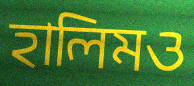
হালিমও